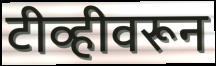
टीव्हीवरून